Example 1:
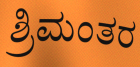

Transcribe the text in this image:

ಶ್ರಿಮಂತರ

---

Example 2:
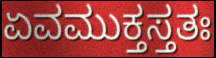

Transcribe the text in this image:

ಏವಮುಕ್ತಸ್ತತಃ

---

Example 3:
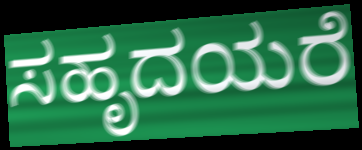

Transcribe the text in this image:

ಸಹೃದಯರೆ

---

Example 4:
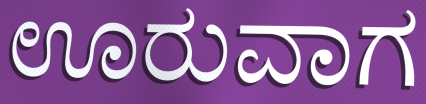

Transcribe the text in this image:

ಊರುವಾಗ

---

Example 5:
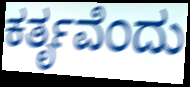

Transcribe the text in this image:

ಕರ್ತೃವೆಂದು